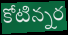
కోటిన్నర